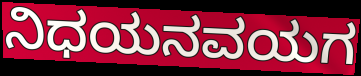
ನಿಧಯನವಯಗ